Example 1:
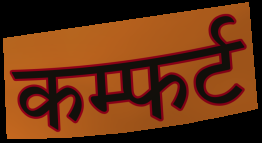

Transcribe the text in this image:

कम्फर्ट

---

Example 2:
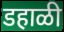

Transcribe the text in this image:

डहाळी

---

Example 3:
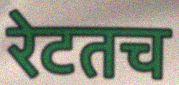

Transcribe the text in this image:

रेटतच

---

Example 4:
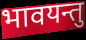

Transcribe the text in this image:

भावयन्तु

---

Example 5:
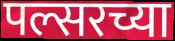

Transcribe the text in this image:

पल्सरच्या